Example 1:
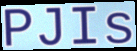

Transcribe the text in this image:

PJIs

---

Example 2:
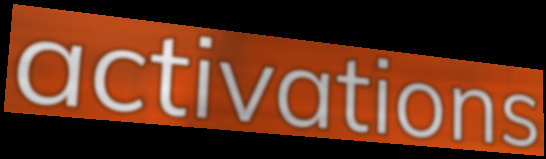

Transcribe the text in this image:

activations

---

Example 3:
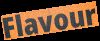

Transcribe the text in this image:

Flavour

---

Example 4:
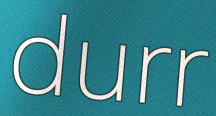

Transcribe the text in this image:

durr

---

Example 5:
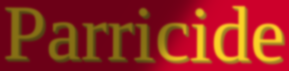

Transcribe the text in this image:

Parricide